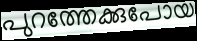
പുറത്തേക്കുപോയ